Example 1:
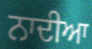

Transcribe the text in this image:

ਨਾਦੀਆ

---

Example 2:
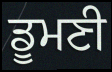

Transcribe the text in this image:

ਡੂਮਣੀ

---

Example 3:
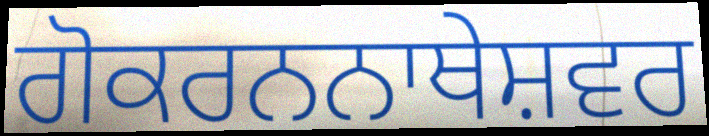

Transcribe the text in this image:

ਗੋਕਰਨਨਾਥੇਸ਼ਵਰ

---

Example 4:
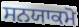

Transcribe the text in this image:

ਸਨਯਾਕਮੋ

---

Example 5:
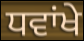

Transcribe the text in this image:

ਧਵਾਂਖੇ